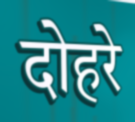
दोहरे